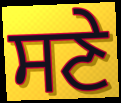
ਸਣੇ